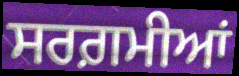
ਸਰਗ਼ਮੀਆਂ